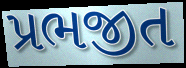
પ્રભજીત